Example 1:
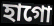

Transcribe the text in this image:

হাগো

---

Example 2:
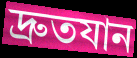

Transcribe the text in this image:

দ্রুতযান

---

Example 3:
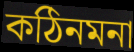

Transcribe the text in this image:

কঠিনমনা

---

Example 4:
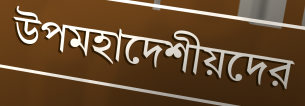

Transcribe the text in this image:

উপমহাদেশীয়দের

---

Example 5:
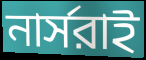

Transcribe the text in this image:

নার্সরাই